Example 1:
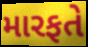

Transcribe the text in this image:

મારફતે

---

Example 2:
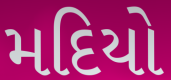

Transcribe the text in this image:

મદિયો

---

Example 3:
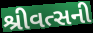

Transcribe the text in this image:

શ્રીવત્સની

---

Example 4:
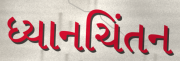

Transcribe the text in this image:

ધ્યાનચિંતન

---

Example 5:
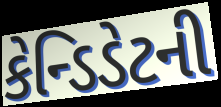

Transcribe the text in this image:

કેન્ડિડેટની